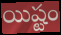
యిష్టం